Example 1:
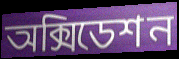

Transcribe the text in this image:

অক্সিডেশন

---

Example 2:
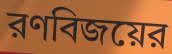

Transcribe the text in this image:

রণবিজয়ের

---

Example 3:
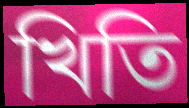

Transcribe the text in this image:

খিতি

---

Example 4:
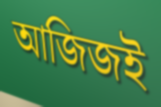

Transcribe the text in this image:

আজিজই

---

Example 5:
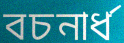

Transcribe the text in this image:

বচনার্ধ